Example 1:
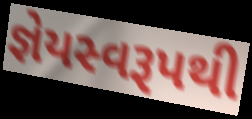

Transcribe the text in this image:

જ્ઞેયસ્વરૂપથી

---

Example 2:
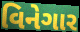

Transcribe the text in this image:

વિનેગાર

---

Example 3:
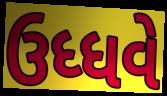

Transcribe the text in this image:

ઉધ્ધવે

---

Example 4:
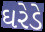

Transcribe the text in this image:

ઘરેડે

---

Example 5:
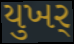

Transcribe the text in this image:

યુખર્